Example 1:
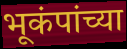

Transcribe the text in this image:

भूकंपांच्या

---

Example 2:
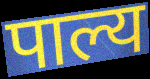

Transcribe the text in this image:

पाल्य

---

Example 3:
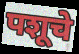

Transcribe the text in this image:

पशूचे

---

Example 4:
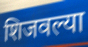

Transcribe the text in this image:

शिजवल्या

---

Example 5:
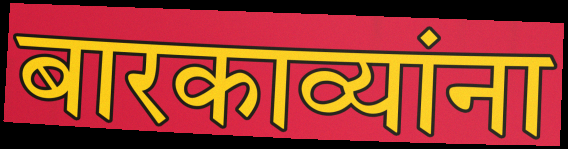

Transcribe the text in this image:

बारकाव्यांना